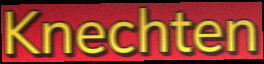
Knechten